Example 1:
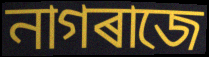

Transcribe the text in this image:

নাগৰাজে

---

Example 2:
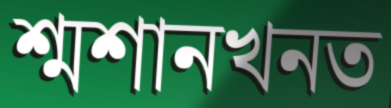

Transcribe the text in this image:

শ্মশানখনত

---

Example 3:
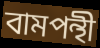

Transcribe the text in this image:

বামপন্থী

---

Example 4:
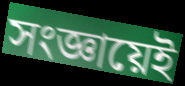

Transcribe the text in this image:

সংজ্ঞায়েই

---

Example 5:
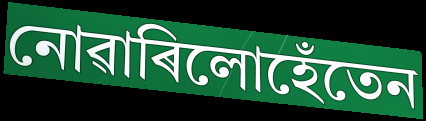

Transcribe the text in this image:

নোৱাৰিলোহেঁতেন